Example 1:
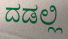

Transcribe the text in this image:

ದಡಲ್ಲಿ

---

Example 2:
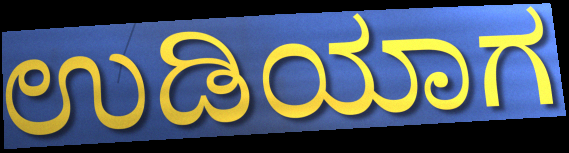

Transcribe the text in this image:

ಉಡಿಯಾಗ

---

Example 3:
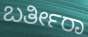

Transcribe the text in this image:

ಬರ್ತೀರಾ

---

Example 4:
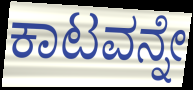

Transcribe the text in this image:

ಕಾಟವನ್ನೇ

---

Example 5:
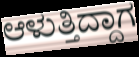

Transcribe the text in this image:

ಆಳುತ್ತಿದ್ದಾಗ